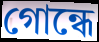
গোন্ধে